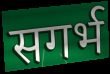
सगर्भ